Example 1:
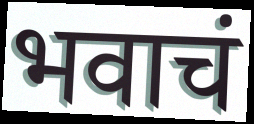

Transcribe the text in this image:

भवाचं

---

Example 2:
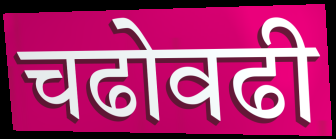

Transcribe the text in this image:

चढोवढी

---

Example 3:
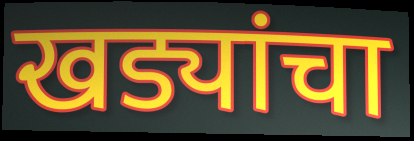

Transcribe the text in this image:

खड्यांचा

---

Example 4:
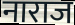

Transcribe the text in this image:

नाराज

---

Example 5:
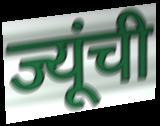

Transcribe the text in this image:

ज्यूंची